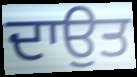
ਦਾਉਤ